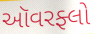
ઑવરફ્લો